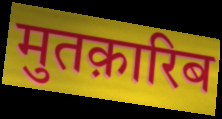
मुतक़ारिब